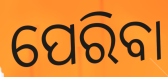
ପେରିବା